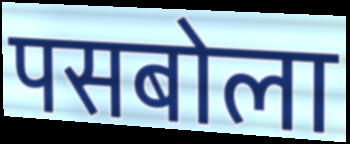
पसबोला